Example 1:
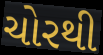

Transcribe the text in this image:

ચોરથી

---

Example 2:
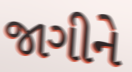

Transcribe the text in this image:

જાગીને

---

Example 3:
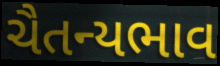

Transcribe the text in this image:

ચૈતન્યભાવ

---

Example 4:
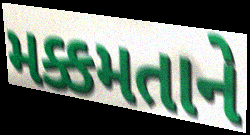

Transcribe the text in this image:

મક્કમતાને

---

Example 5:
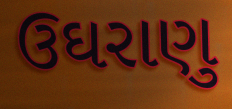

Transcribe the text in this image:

ઉઘરાણુ